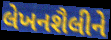
લેખનશૈલીને